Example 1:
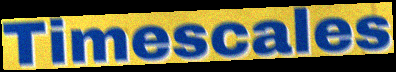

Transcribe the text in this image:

Timescales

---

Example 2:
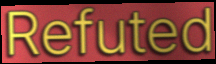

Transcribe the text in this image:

Refuted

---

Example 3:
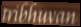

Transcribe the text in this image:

tribhuvan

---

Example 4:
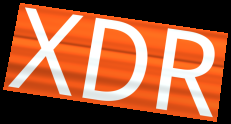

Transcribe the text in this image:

XDR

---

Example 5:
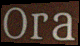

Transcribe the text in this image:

Ora